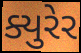
ક્યુરેર